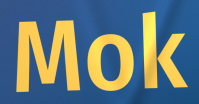
Mok